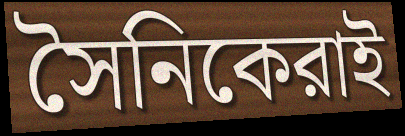
সৈনিকেরাই